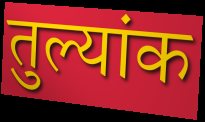
तुल्यांक